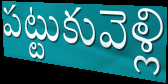
పట్టుకువెళ్లి